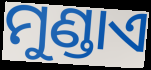
ମୁଣ୍ଡାଏ